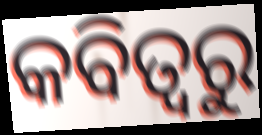
କବିତ୍ଵରୁ